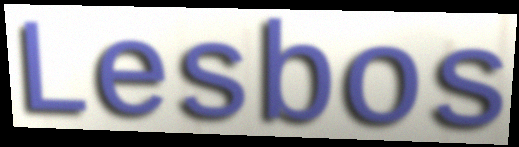
Lesbos